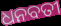
ଧନବତୀ